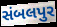
સંબલપુર